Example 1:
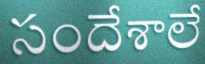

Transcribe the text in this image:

సందేశాలే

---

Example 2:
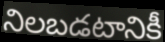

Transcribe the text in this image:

నిలబడటానికీ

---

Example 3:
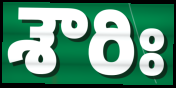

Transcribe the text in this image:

శౌరిః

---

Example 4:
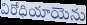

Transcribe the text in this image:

విరోధియాయెను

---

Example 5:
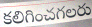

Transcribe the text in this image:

కలిగించగలరు